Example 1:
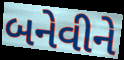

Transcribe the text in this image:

બનેવીને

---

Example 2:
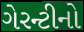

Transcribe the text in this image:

ગેરન્ટીનો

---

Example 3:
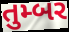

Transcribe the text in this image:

તુમ્બર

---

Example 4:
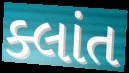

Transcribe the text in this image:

ક્લાંત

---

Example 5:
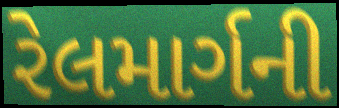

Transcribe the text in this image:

રેલમાર્ગની